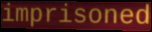
imprisoned